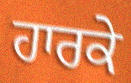
ਹਾਰਕੇ